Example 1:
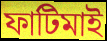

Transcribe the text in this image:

ফাটিমাই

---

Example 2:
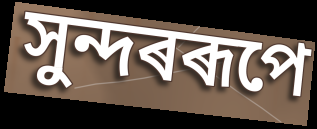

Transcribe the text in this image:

সুন্দৰৰূপে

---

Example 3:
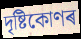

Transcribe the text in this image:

দৃষ্টিকোণৰ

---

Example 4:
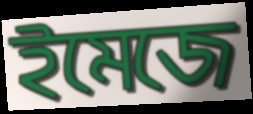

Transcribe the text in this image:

ইমেজে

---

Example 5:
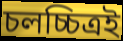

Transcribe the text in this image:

চলচ্চিত্ৰই